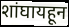
शांघायहून